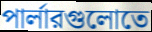
পার্লারগুলোতে